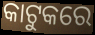
କାଟୁକରେ